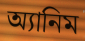
অ্যানিম